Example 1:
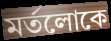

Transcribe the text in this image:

মর্তলোকে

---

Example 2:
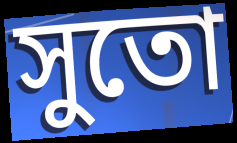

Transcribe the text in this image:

সুতো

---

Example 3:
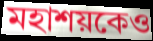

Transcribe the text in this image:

মহাশয়কেও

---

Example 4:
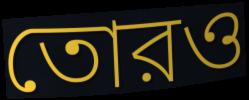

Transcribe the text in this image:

তোরও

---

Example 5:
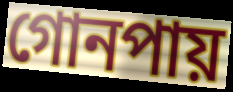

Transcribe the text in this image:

গোনপায়